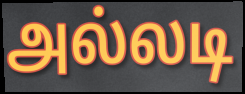
அல்லடி